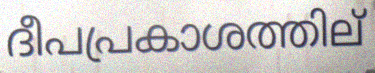
ദീപപ്രകാശത്തില്